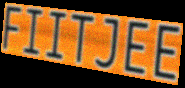
FIITJEE